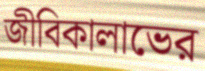
জীবিকালাভের